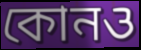
কোনও